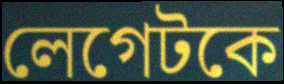
লেগেটকে